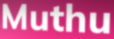
Muthu